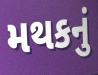
મથકનું